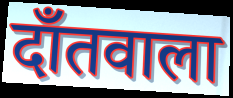
दाँतवाला